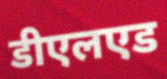
डीएलएड